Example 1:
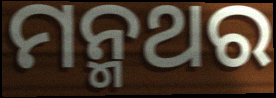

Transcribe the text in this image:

ମନ୍ମଥର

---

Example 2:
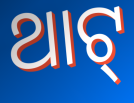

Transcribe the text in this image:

ଥାଟ୍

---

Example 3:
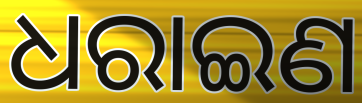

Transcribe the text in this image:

ଧରାଇଣ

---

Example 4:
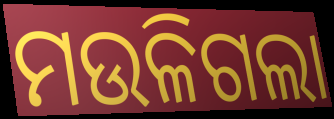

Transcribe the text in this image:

ମଉଳିଗଲା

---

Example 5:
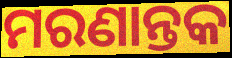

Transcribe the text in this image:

ମରଣାନ୍ତକ